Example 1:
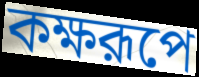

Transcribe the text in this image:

কক্ষরূপে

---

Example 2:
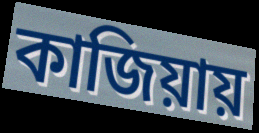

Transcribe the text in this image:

কাজিয়ায়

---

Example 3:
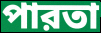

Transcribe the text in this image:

পারতা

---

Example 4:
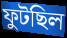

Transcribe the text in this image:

ফুটছিল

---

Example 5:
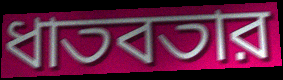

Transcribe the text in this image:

ধাতবতার